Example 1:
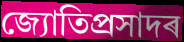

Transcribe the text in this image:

জ্যোতিপ্ৰসাদৰ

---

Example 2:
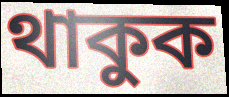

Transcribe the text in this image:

থাকুক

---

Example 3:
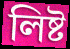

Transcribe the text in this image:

লিষ্ট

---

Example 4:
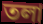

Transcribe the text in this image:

তলা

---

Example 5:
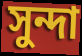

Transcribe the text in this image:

সুন্দা